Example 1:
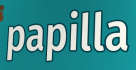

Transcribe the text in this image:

papilla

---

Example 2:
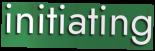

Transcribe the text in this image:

initiating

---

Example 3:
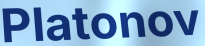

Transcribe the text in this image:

Platonov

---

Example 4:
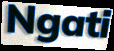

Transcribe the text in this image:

Ngati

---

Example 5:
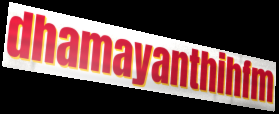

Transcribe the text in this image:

dhamayanthihfm